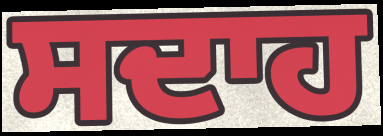
ਸਦਾਹ